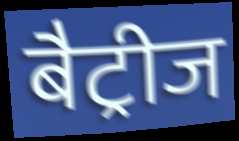
बैट्रीज